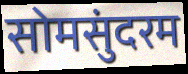
सोमसुंदरम